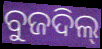
ବୁଜଦିଲ୍